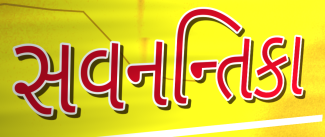
સવનન્તિકા